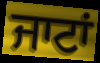
ਜਾਟਾਂ